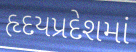
હૃદયપ્રદેશમાં